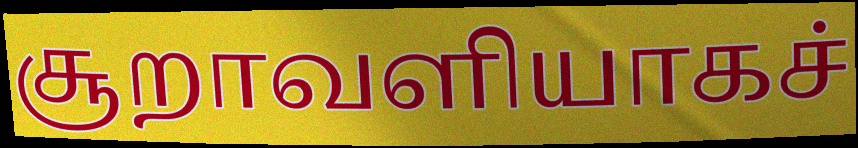
சூறாவளியாகச்